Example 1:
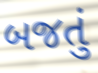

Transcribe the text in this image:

બજતું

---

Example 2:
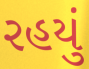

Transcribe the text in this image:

રહયું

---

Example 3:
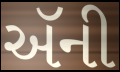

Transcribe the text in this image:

ઍની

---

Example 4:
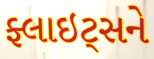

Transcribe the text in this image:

ફ્લાઇટ્સને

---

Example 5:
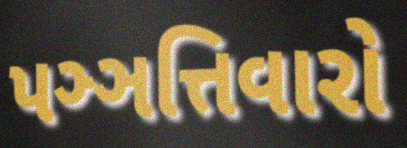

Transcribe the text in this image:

પઞ્ઞત્તિવારો